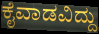
ಕೈವಾಡವಿದ್ದು